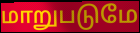
மாறுபடுமே